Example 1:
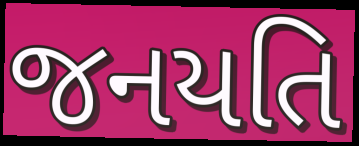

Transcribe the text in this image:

જનયતિ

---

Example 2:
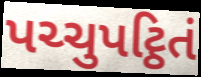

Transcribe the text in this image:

પચ્ચુપટ્ઠિતં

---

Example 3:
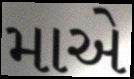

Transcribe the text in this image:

માએ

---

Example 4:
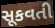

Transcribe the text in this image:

સૂકવતી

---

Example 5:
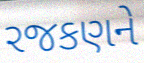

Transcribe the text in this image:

રજકણને